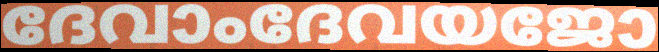
ദേവാംദേവയജോ